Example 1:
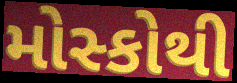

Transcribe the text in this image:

મોસ્કોથી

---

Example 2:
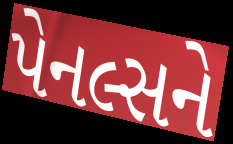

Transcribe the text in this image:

પેનલ્સને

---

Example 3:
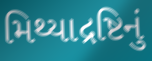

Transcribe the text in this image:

મિથ્યાદ્રષ્ટિનું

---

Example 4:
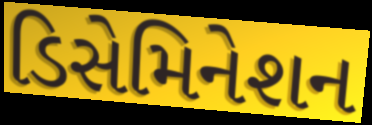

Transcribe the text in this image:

ડિસેમિનેશન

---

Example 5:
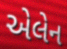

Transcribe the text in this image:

એલેન